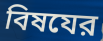
বিষযের